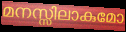
മനസ്സിലാകുമോ